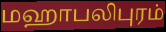
மஹாபலிபுரம்